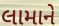
લામાને